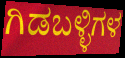
ಗಿಡಬಳ್ಳಿಗಳ